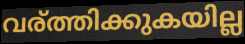
വര്ത്തിക്കുകയില്ല